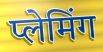
प्लेमिंग